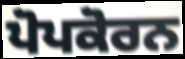
ਪੋਪਕੋਰਨ